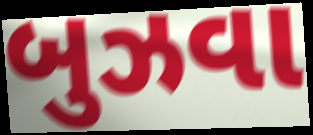
બુઝવા